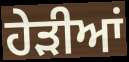
ਹੇੜੀਆਂ